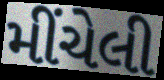
મીંચેલી